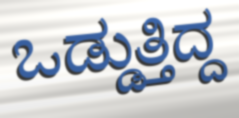
ಒಡ್ಡುತ್ತಿದ್ದ